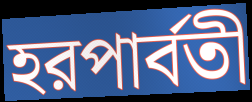
হরপার্বতী